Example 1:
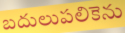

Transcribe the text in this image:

బదులుపలికెను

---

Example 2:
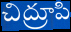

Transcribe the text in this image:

చిద్రూపి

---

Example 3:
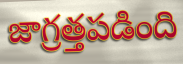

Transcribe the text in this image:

జాగ్రత్తపడింది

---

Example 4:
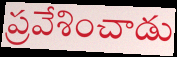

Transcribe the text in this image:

ప్రవేశించాడు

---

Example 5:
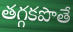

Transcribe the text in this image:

తగ్గకపొతే